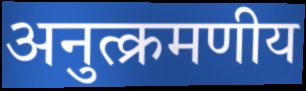
अनुत्क्रमणीय